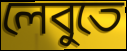
লেবুতে